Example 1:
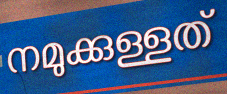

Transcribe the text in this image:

നമുക്കുള്ളത്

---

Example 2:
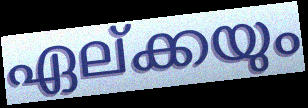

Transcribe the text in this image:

ഏല്ക്കയും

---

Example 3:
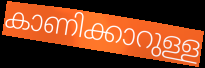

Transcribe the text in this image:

കാണിക്കാറുള്ള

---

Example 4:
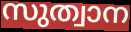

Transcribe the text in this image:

സുത്വാന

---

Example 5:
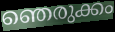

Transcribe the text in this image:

ഞെരുക്കം